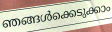
ഞങ്ങൾക്കെടുക്കാം